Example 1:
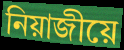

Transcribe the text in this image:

নিয়াজীয়ে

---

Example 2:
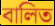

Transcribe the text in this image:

বালিত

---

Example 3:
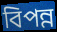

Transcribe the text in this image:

বিপন্ন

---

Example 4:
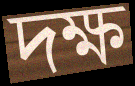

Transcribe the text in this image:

দক্ষ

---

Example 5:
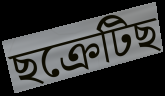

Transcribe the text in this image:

ছক্ৰেটিছ